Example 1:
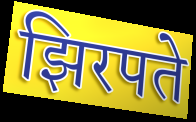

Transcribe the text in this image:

झिरपते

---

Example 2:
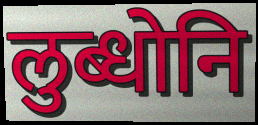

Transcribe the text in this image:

लुब्धोनि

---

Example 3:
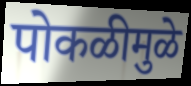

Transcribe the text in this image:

पोकळीमुळे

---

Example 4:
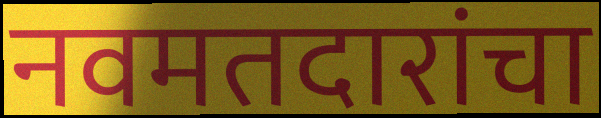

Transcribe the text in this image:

नवमतदारांचा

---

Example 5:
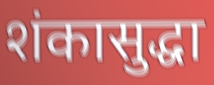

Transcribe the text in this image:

शंकासुद्धा